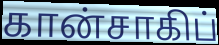
கான்சாகிப்